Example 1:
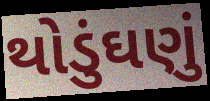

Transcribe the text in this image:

થોડુંઘણું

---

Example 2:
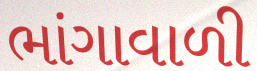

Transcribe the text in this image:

ભાંગાવાળી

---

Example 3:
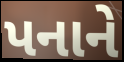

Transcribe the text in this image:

પનાને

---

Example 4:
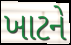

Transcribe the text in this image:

ખાટને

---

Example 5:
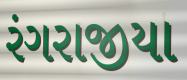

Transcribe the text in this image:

રંગરાજીયા